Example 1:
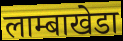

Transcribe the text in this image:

लाम्बाखेडा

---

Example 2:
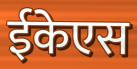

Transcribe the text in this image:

ईकेएस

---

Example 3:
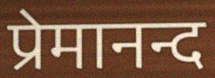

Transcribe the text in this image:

प्रेमानन्द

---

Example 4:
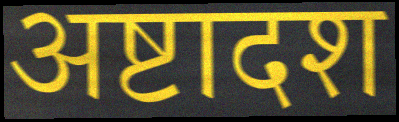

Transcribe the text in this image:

अष्टादश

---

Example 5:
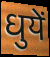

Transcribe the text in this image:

धुयें